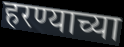
हरण्याच्या